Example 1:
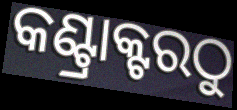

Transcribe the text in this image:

କଣ୍ଟ୍ରାକ୍ଟରଠୁ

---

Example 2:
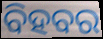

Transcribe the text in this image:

ବିହବର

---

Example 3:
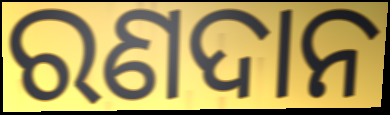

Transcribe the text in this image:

ରଣଦାନ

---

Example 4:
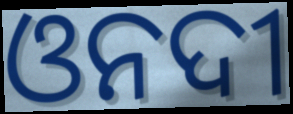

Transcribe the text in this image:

ଓନଦୀ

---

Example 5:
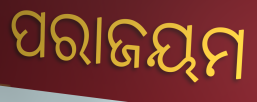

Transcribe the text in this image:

ପରାଜୟମ